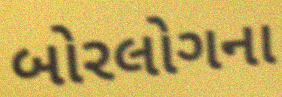
બોરલોગના